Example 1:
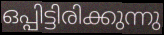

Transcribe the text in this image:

ഒപ്പിട്ടിരിക്കുന്നു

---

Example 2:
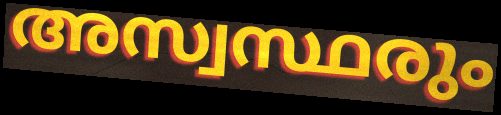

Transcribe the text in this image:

അസ്വസ്ഥരും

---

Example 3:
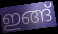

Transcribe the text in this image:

ഇങ്ങ്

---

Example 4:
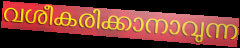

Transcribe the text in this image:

വശീകരിക്കാനാവുന്ന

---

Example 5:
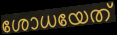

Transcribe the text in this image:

ശോധയേത്